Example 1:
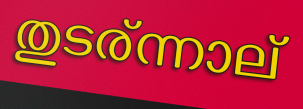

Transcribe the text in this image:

തുടര്ന്നാല്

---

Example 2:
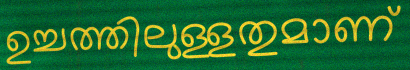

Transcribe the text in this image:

ഉച്ചത്തിലുള്ളതുമാണ്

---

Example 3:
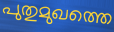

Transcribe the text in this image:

പുതുമുഖത്തെ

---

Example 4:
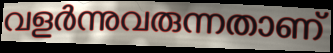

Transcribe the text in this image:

വളർന്നുവരുന്നതാണ്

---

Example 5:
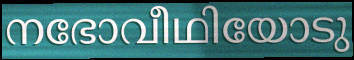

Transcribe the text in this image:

നഭോവീഥിയോടു